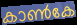
കാൺകേ